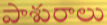
పాశురాలు